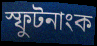
স্ফুটনাংক